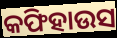
କଫିହାଉସ